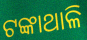
ଟଙ୍କାଥାଳି